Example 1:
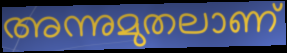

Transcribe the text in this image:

അന്നുമുതലാണ്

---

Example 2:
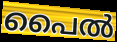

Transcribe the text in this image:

പൈൽ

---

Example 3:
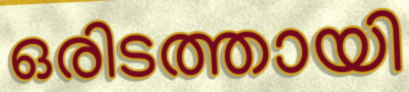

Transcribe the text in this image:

ഒരിടത്തായി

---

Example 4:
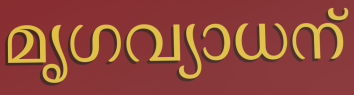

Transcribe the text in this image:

മൃഗവ്യാധന്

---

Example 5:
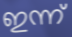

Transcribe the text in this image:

ഇന്ന്